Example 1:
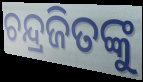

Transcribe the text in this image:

ଚନ୍ଦ୍ରଜିତଙ୍କୁ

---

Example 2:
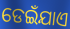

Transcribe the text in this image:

ଡେଇଁଯାଏ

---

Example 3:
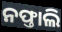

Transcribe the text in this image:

ନଫ୍ତାଲି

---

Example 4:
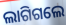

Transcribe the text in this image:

ଲାଗିଗଲେ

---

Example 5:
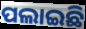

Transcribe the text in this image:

ପଲାଇଛି